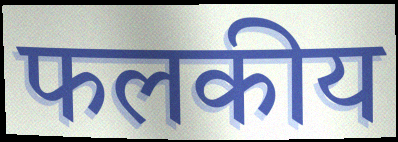
फलकीय